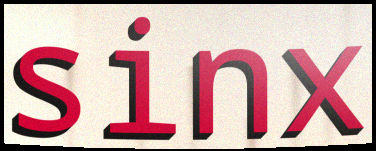
sinx